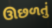
ઊછળતું